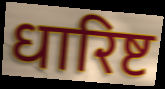
धारिष्ट